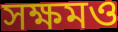
সক্ষমও